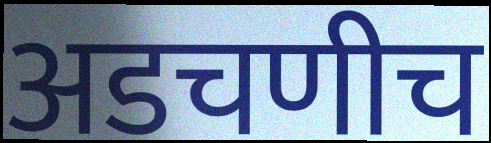
अडचणीच